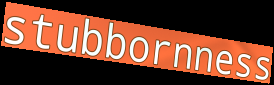
stubbornness